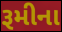
રૂમીના